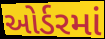
ઓર્ડરમાં